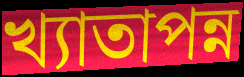
খ্যাতাপন্ন